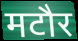
मटौर